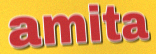
amita